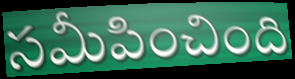
సమీపించింది